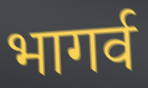
भागर्व